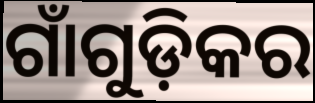
ଗାଁଗୁଡ଼ିକର